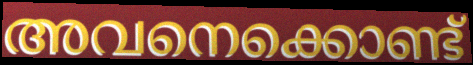
അവനെക്കൊണ്ട്